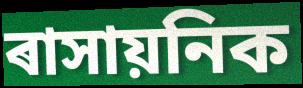
ৰাসায়নিক